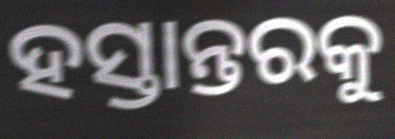
ହସ୍ତାନ୍ତରକୁ